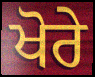
ਖੋਰੇ